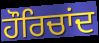
ਹੌਰਿਚਾਂਦ